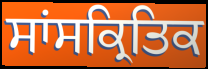
ਸਾਂਸਕ੍ਰਿਤਿਕ